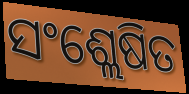
ସଂଶ୍ଲେଷିତ